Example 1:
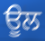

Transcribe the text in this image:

ਊਲ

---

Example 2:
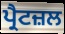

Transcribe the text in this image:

ਪ੍ਰੈਟਜ਼ਲ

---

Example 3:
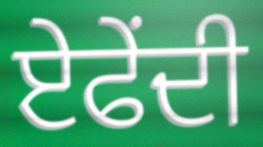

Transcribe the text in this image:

ਏਫੇਂਦੀ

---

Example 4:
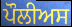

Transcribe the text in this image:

ਪੌਲੀਅਸ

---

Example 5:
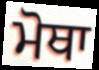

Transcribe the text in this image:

ਮੋਥਾ